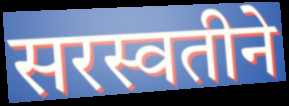
सरस्वतीने